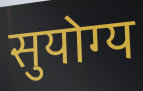
सुयोग्य